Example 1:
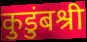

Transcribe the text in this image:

कुडुंबश्री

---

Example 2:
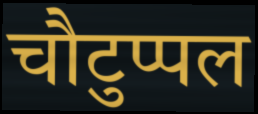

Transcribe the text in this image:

चौटुप्पल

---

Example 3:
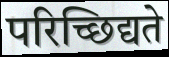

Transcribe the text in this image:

परिच्छिद्यते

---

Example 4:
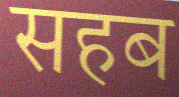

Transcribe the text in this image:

सहब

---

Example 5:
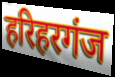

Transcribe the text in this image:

हरिहरगंज